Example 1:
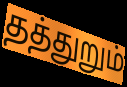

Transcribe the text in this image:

தத்துறும்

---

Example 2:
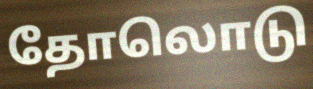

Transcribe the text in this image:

தோலொடு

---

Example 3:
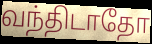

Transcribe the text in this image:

வந்திடாதோ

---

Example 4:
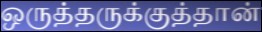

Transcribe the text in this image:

ஒருத்தருக்குத்தான்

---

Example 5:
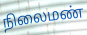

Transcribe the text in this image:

நிலைமண்